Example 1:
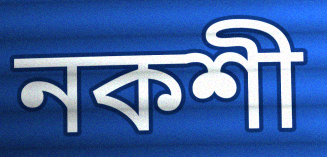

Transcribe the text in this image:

নকশী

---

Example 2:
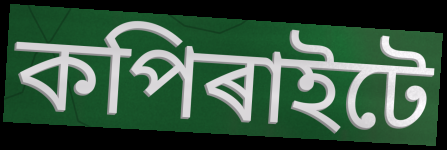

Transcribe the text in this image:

কপিৰাইটে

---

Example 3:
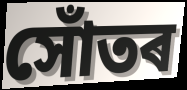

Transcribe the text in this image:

সোঁতৰ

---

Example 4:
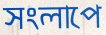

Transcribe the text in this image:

সংলাপে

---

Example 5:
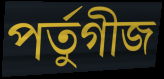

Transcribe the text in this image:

পৰ্তুগীজ